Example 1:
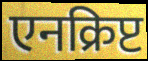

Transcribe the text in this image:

एनक्रिप्ट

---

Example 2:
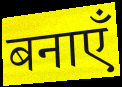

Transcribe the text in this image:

बनाएँ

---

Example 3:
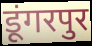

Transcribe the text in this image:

डूंगरपुर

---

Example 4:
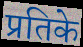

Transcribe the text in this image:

प्रतिके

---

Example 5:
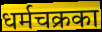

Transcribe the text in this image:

धर्मचक्रका